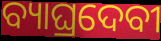
ବ୍ୟାଘ୍ରଦେବୀ